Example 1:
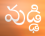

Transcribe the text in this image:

వుడ్ఢి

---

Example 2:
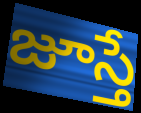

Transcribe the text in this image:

జూస్తే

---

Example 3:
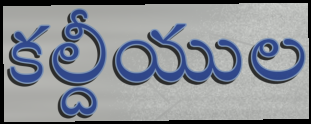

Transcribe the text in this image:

కల్దీయుల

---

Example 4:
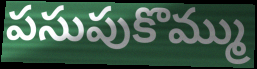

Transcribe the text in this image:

పసుపుకొమ్ము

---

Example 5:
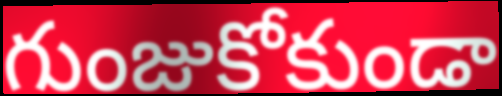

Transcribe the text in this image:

గుంజుకోకుండా